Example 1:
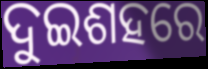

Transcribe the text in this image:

ଦୁଇଶହରେ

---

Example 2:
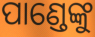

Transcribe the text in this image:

ପାଣ୍ଡେଙ୍କୁ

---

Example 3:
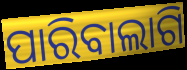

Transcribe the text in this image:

ପାରିବାଲାଗି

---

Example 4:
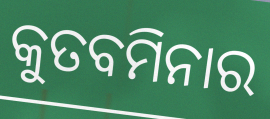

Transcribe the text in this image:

କୁତବମିନାର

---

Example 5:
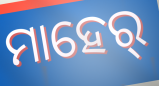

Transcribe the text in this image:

ମାହେର୍